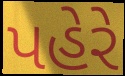
પહેરે